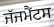
ਜੱਜਮੈਂਟਸ